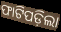
ଫାଟିପଡ଼ିଲା